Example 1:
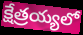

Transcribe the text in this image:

క్షేత్రయ్యలో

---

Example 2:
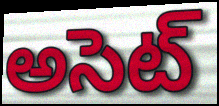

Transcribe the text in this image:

అసెట్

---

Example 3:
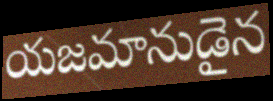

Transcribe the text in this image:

యజమానుడైన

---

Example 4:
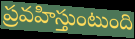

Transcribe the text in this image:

ప్రవహిస్తుంటుంది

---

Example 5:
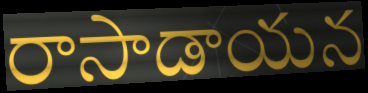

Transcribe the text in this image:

రాసాడాయన